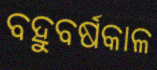
ବହୁବର୍ଷକାଳ